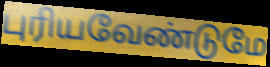
புரியவேண்டுமே